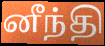
னீந்தி